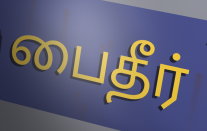
பைதீர்